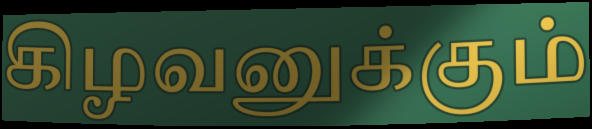
கிழவனுக்கும்